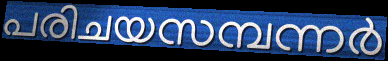
പരിചയസമ്പന്നർ